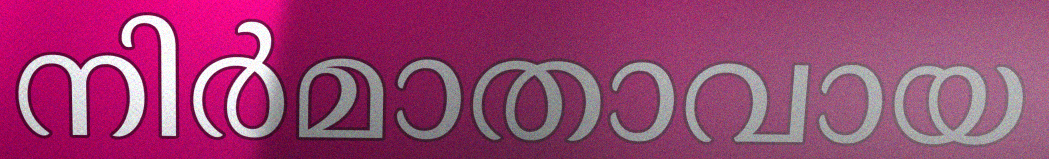
നിർമാതാവായ